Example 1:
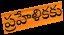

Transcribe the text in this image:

ప్రహేళికకు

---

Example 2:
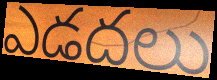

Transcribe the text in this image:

ఎడదలు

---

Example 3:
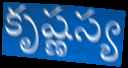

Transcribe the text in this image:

కృష్ణస్య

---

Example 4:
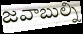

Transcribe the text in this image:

జవాబుల్ని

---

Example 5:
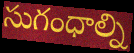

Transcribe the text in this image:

సుగంధాల్ని